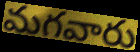
మగవారు